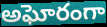
అఘోరంగా